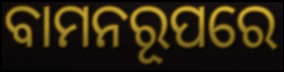
ବାମନରୂପରେ